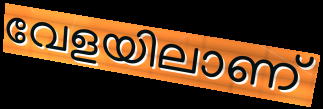
വേളയിലാണ്